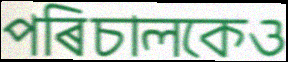
পৰিচালকেও